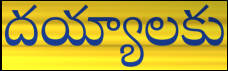
దయ్యాలకు